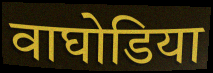
वाघोडिया